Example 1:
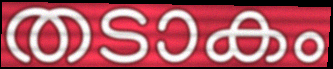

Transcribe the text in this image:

തടാകം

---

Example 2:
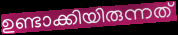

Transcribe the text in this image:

ഉണ്ടാക്കിയിരുന്നത്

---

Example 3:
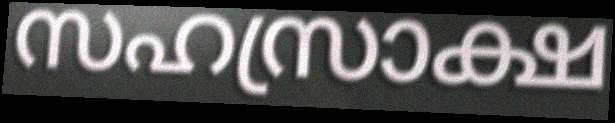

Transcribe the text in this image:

സഹസ്രാക്ഷ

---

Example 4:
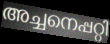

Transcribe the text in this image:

അച്ചനെപ്പറ്റി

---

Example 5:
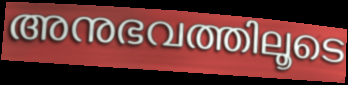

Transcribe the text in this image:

അനുഭവത്തിലൂടെ